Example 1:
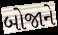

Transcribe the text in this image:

બોજાને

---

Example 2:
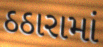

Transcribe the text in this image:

ઠઠારામાં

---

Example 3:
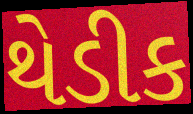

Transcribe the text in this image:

થેડીક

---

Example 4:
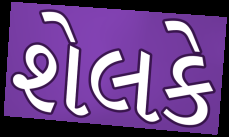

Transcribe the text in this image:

શેલકે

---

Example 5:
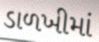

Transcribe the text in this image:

ડાળખીમાં